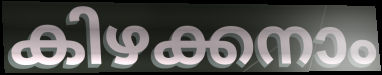
കിഴക്കനാം